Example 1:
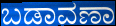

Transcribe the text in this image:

ಬಡಾವಣಾ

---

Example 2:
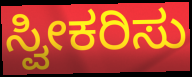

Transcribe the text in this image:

ಸ್ವೀಕರಿಸು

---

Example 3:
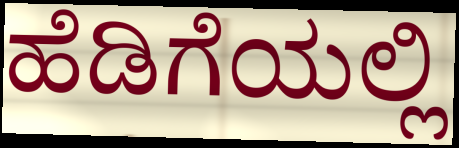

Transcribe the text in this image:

ಹೆಡಿಗೆಯಲ್ಲಿ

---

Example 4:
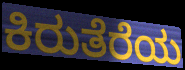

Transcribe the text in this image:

ಕಿರುತೆರೆಯ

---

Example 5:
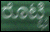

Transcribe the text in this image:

ರೊಟ್ಟಿ